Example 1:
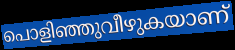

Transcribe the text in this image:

പൊളിഞ്ഞുവീഴുകയാണ്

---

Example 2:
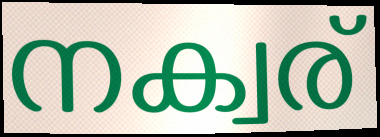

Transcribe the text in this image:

നക്വര്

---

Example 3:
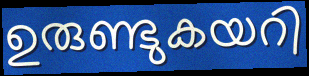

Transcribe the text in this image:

ഉരുണ്ടുകയറി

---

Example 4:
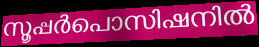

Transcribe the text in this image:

സൂപ്പർപൊസിഷനിൽ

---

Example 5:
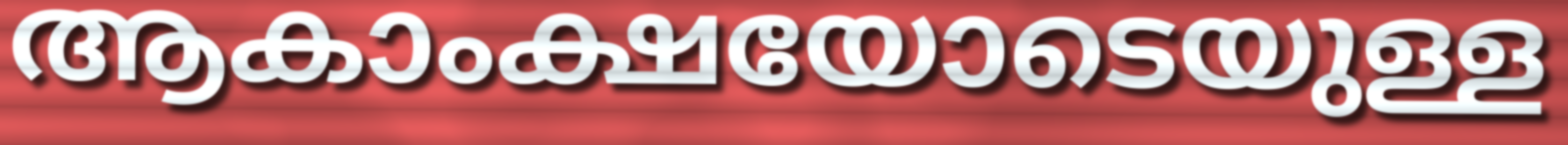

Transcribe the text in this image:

ആകാംക്ഷയോടെയുള്ള